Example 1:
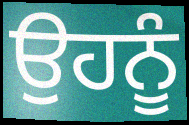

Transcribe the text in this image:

ਉਹਨੂੰ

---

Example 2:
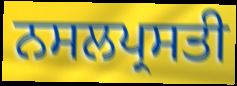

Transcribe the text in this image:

ਨਸਲਪ੍ਰਸਤੀ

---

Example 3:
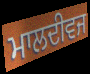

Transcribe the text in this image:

ਮਾਲਦੀਵਜ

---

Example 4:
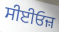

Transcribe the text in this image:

ਸੀਈਓਜ਼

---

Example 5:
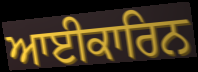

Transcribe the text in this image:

ਆਈਕਾਰਿਨ